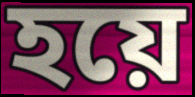
হয়ে